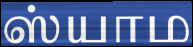
ஸ்யாம